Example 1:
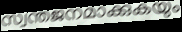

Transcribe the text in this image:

സ്വന്തജനമാക്കുകയും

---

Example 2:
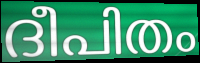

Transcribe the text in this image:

ദീപിതം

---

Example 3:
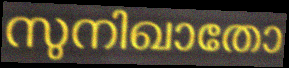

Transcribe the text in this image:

സുനിഖാതോ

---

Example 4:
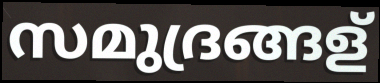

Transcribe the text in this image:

സമുദ്രങ്ങള്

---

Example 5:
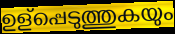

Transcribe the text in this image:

ഉള്പ്പെടുത്തുകയും